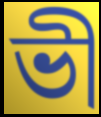
ভী